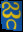
జ్గ